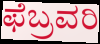
ಫೆಬ್ರವರಿ